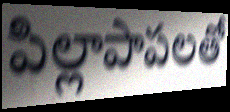
పిల్లాపాపలతో